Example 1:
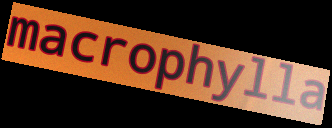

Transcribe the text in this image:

macrophylla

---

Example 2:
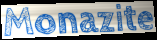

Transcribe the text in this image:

Monazite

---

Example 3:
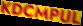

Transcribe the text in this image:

KDCMPUL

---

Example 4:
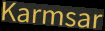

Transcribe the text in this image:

Karmsar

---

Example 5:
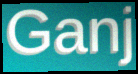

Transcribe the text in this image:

Ganj